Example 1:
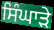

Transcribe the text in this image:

ਸਿੰਘਾੜੇ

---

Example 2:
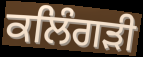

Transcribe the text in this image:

ਕਲਿੰਗੜੀ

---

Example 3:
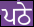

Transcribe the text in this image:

ਪਠੇ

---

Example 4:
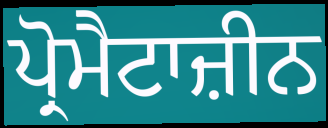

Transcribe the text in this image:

ਪ੍ਰੋਮੈਟਾਜ਼ੀਨ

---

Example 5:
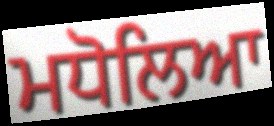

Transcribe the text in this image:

ਮਧੋਲਿਆ